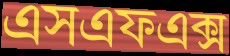
এসএফএক্স